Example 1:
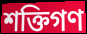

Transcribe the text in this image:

শক্তিগণ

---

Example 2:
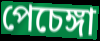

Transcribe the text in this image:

পেচেঙ্গা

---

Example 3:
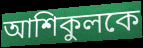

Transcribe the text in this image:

আশিকুলকে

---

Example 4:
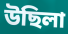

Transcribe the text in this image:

উছিলা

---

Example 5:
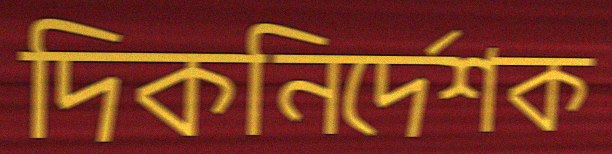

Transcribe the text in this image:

দিকনির্দেশক